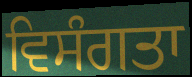
ਵਿਸੰਗਤਾ